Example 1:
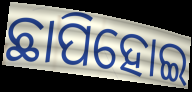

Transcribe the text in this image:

ଛାପିହୋଇ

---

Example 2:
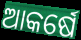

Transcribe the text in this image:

ଆକର୍ଷେ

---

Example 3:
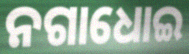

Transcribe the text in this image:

ନଗାଧୋଇ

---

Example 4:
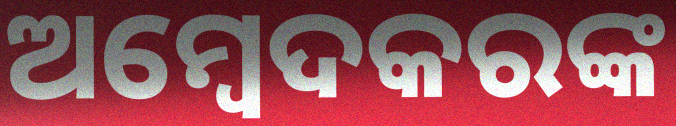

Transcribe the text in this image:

ଅମ୍ବେଦକରଙ୍କ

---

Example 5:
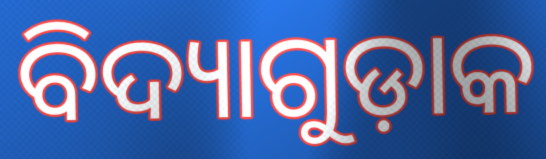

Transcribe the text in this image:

ବିଦ୍ୟାଗୁଡ଼ାକ